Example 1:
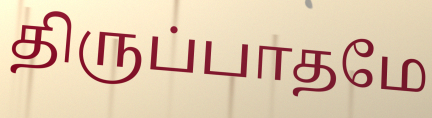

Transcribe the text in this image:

திருப்பாதமே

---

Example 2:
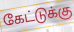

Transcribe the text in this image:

கேட்டுக்கு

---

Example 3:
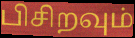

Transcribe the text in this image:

பிசிறவும்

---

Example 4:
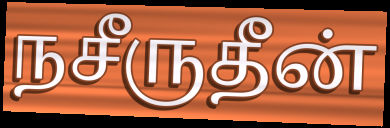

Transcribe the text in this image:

நசீருதீன்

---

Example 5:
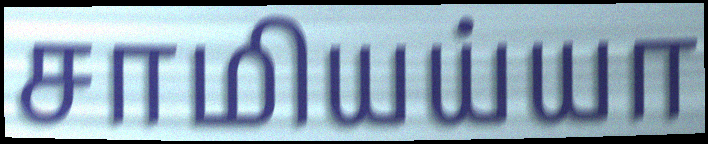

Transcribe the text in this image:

சாமியய்யா